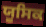
ਯੂਸਿਕ